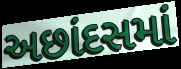
અછાંદસમાં